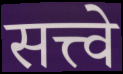
सत्त्वे